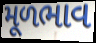
મૂળભાવ